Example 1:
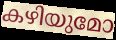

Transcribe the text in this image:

കഴിയുമോ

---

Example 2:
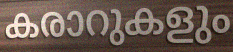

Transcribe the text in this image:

കരാറുകളും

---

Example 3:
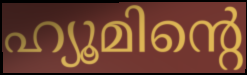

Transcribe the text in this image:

ഹ്യൂമിന്റെ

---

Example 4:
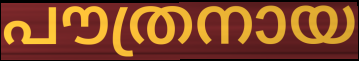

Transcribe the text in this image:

പൗത്രനായ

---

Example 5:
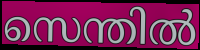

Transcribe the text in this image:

സെന്തിൽ